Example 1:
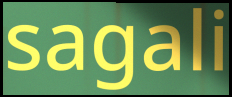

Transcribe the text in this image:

sagali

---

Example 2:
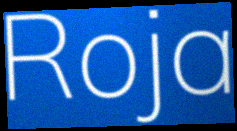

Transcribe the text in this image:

Roja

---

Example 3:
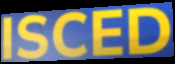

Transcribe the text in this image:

ISCED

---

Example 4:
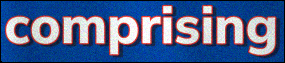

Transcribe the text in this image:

comprising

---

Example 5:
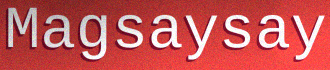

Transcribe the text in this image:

Magsaysay